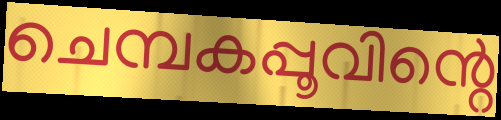
ചെമ്പകപ്പൂവിന്റെ